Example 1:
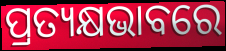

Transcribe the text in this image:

ପ୍ରତ୍ୟକ୍ଷଭାବରେ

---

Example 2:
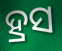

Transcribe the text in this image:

ହ୍ରସ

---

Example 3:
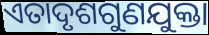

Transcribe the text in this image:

ଏତାଦୃଶଗୁଣଯୁକ୍ତା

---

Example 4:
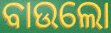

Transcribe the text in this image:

ବାଉଲୋ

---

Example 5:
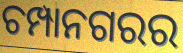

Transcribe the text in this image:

ଚମ୍ପାନଗରର